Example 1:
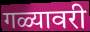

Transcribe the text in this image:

गळ्यावरी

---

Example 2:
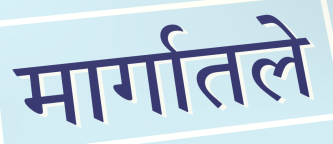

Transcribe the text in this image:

मार्गातले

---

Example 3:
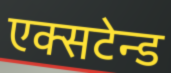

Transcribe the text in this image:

एक्सटेन्ड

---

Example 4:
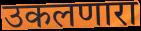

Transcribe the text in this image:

उकलणारा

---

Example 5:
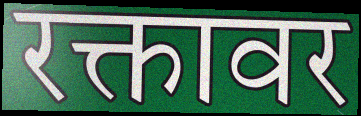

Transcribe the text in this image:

रक्तावर